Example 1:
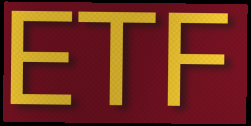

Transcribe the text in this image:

ETF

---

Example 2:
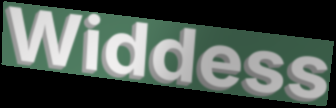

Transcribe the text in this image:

Widdess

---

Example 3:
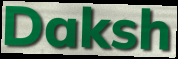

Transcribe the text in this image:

Daksh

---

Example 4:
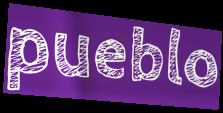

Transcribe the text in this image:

pueblo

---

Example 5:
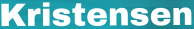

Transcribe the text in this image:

Kristensen